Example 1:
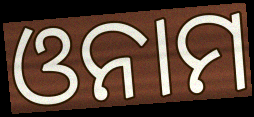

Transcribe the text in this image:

ଓନାମ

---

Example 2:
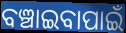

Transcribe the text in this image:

ବଞ୍ଚାଇବାପାଇଁ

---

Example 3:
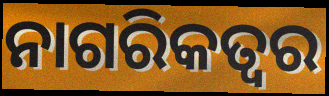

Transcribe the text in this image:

ନାଗରିକତ୍ଵର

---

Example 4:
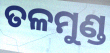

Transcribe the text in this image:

ତଳମୁଣ୍ଡ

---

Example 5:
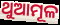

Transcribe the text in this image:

ଥୁଆମୂଳ